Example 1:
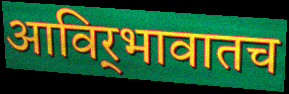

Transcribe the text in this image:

आविर्भावातच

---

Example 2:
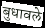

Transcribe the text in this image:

बुधावले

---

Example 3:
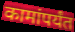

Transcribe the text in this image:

कामांपर्यंत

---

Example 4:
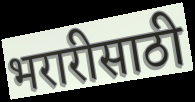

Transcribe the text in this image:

भरारीसाठी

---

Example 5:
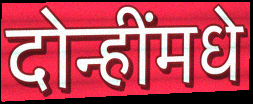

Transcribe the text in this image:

दोन्हींमधे